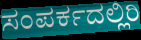
ಸಂಪರ್ಕದಲ್ಲಿರಿ